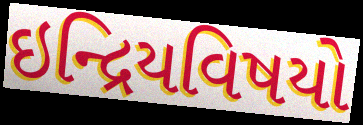
ઇન્દ્રિયવિષયો